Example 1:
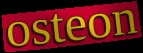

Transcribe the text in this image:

osteon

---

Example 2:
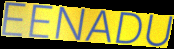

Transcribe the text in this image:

EENADU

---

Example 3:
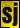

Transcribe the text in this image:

sj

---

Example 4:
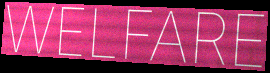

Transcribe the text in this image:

WELFARE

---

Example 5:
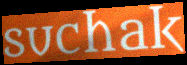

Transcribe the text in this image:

suchak